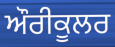
ਔਰੀਕੂਲਰ